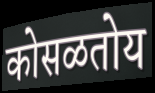
कोसळतोय